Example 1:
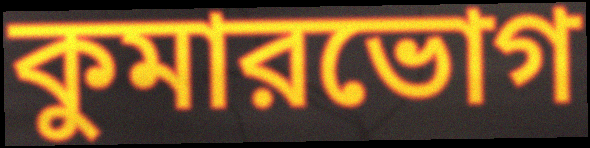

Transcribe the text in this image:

কুমারভোগ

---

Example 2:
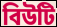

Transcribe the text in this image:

বিউটি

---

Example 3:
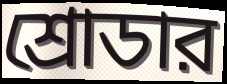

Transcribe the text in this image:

শ্রোডার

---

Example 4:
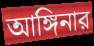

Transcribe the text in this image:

আঙ্গিনার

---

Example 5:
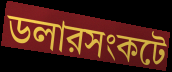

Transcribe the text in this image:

ডলারসংকটে